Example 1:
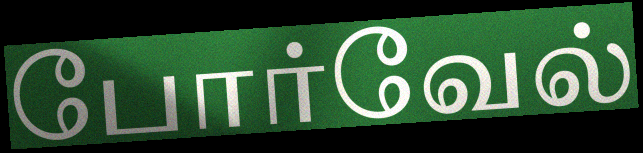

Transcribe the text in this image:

போர்வேல்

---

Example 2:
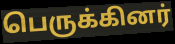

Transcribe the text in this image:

பெருக்கினர்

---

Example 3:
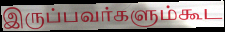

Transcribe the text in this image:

இருப்பவர்களும்கூட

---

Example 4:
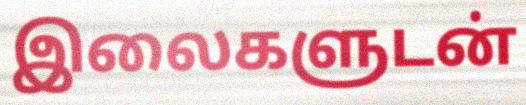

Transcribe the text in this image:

இலைகளுடன்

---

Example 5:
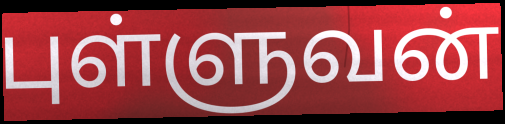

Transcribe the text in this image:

புள்ளுவன்